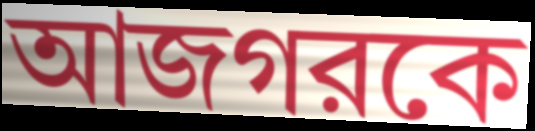
আজগরকে